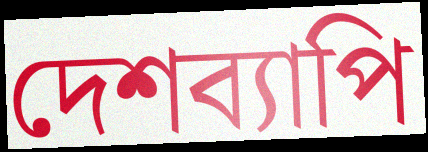
দেশব্যাপি